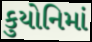
કુયોનિમાં